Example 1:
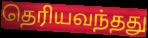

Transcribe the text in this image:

தெரியவந்தது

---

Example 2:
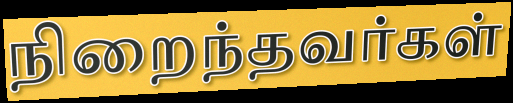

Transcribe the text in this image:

நிறைந்தவர்கள்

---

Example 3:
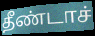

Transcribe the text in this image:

தீண்டாச்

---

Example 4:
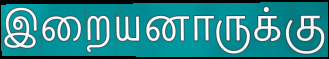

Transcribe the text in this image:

இறையனாருக்கு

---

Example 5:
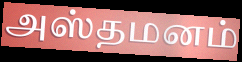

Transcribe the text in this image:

அஸ்தமனம்